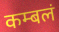
कम्बलं